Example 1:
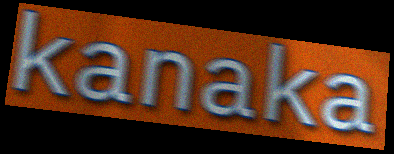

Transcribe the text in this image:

kanaka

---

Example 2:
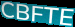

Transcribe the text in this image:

CBFTE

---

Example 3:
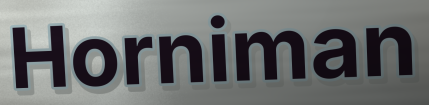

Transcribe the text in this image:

Horniman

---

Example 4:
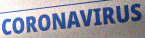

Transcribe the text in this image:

CORONAVIRUS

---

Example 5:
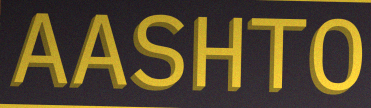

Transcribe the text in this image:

AASHTO